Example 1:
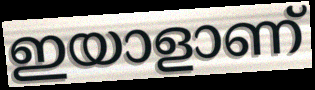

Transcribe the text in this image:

ഇയാളാണ്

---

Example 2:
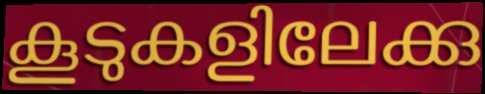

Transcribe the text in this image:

കൂടുകളിലേക്കു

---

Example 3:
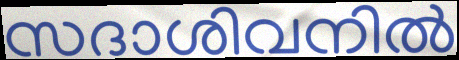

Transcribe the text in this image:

സദാശിവനിൽ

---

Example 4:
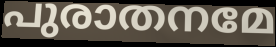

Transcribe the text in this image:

പുരാതനമേ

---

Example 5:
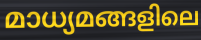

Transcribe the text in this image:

മാധ്യമങ്ങളിലെ